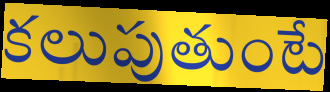
కలుపుతుంటే